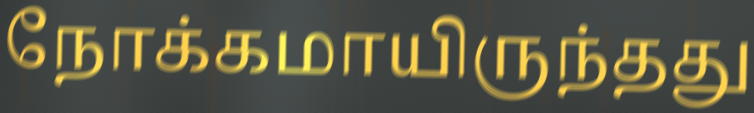
நோக்கமாயிருந்தது